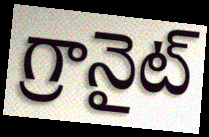
గ్రానైట్